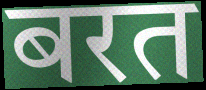
बरत